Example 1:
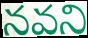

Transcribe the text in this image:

నవని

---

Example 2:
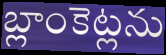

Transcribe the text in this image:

బ్లాంకెట్లను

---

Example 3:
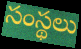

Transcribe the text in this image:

సంస్థలు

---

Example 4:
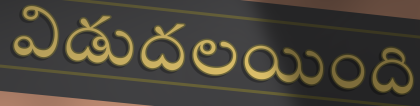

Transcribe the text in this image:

విడుదలయింది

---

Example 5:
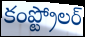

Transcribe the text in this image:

కంప్ట్రోలర్